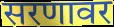
सरणावर